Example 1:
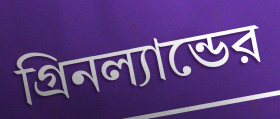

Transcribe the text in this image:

গ্রিনল্যান্ডের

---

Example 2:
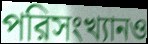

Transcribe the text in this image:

পরিসংখ্যানও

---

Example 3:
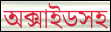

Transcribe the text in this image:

অক্সাইডসহ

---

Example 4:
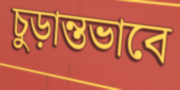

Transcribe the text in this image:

চুড়ান্তভাবে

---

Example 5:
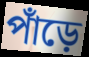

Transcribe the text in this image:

পাঁড়ে